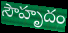
సౌహృదం